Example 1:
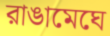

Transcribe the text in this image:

রাঙামেঘে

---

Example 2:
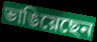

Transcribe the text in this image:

ভাঙিয়েছেন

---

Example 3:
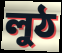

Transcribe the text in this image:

লুঠ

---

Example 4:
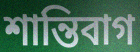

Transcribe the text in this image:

শান্তিবাগ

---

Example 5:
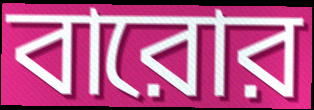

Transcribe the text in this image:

বারোর